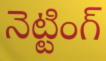
నెట్టింగ్